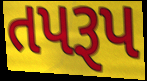
તપરૂપ